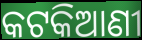
କଟକିଆଣୀ